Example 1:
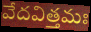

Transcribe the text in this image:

వేదవిత్తమః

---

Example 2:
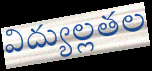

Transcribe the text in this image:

విద్యుల్లతల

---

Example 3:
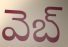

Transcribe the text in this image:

వెబ్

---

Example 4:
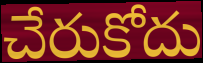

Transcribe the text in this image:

చేరుకోదు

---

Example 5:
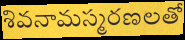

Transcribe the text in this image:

శివనామస్మరణలతో